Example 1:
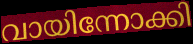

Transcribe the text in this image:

വായിന്നോക്കി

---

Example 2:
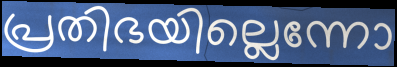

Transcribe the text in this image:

പ്രതിഭയില്ലെന്നോ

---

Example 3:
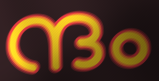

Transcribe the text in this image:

ന്ദം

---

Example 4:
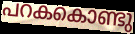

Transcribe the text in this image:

പറകകൊണ്ടു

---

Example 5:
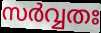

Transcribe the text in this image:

സർവ്വതഃ